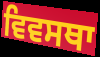
ਵਿਵਸਥਾ